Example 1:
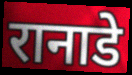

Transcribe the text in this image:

रानाडे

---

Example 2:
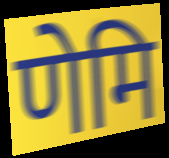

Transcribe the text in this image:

णेमि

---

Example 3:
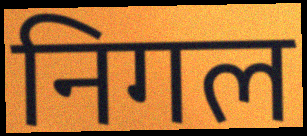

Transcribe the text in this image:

निगल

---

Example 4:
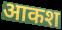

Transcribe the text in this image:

आकश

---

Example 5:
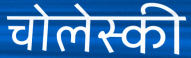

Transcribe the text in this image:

चोलेस्की